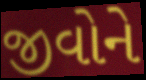
જીવોને